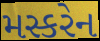
મસ્કરેન